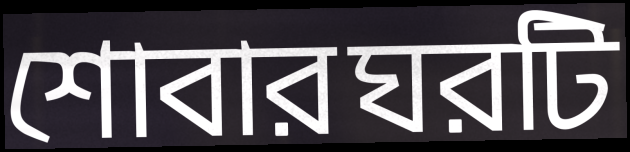
শোবারঘরটি